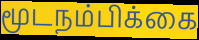
மூடநம்பிக்கை